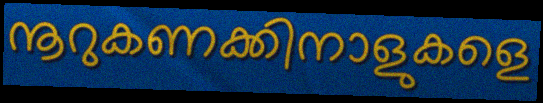
നൂറുകണക്കിനാളുകളെ